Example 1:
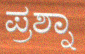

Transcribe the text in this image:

ಪ್ರಶ್ನಾ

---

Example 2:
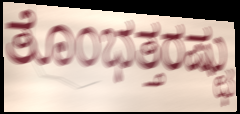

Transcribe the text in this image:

ತೊಂಭತ್ತರಷ್ಟು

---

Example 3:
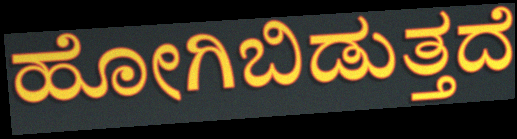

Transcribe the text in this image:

ಹೋಗಿಬಿಡುತ್ತದೆ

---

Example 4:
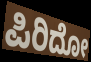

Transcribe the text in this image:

ಪಿರಿದೋ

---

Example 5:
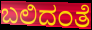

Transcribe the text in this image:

ಬಲಿದಂತೆ